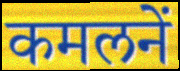
कमलनें